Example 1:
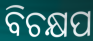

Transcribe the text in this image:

ବିଚକ୍ଷପ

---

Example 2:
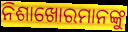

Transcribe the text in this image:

ନିଶାଖୋରମାନଙ୍କୁ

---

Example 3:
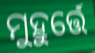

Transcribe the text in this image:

ମୁହୁର୍ତ୍ତେ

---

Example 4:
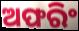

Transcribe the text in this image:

ଅଫରିଂ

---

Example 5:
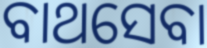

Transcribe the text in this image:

ବାଥସେବା